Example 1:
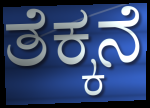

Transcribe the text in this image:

ತೆಕ್ಕನೆ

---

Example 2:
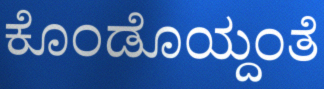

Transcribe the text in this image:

ಕೊಂಡೊಯ್ದಂತೆ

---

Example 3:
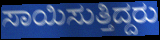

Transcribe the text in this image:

ಸಾಯಿಸುತ್ತಿದ್ದರು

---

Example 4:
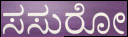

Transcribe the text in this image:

ಸಸುರೋ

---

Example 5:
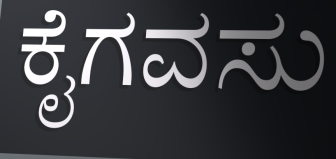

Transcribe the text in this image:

ಕೈಗವಸು